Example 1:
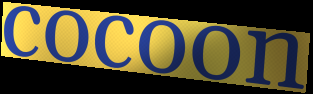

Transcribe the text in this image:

cocoon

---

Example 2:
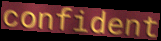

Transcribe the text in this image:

confident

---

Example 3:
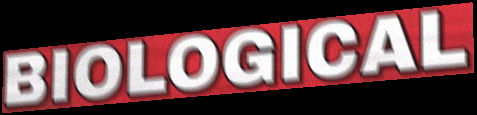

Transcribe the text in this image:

BIOLOGICAL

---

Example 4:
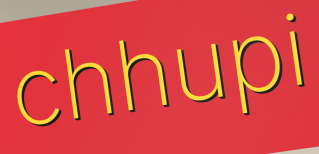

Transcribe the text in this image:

chhupi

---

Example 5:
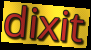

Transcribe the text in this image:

dixit